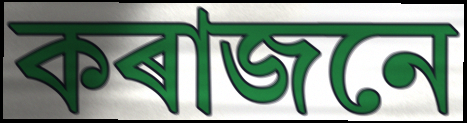
কৰাজনে